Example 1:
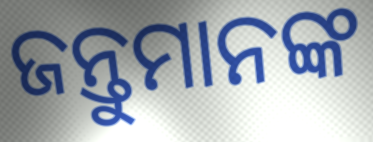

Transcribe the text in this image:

ଜନ୍ତୁମାନଙ୍କ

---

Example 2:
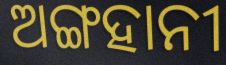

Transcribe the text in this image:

ଅଙ୍ଗହାନୀ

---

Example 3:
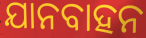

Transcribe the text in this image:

ଯାନବାହନ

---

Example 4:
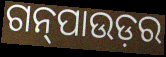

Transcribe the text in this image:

ଗନ୍‍ପାଉଡ଼ର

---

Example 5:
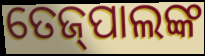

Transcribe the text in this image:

ତେଜ୍‌ପାଲଙ୍କ